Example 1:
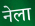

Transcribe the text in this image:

नेला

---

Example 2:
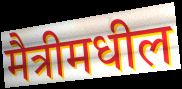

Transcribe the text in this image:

मैत्रीमधील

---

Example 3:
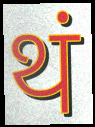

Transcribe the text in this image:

थं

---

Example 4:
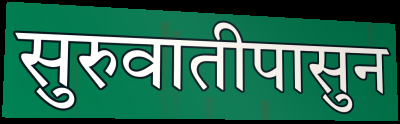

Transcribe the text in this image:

सुरुवातीपासुन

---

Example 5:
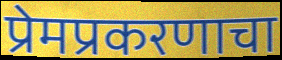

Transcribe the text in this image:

प्रेमप्रकरणाचा